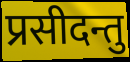
प्रसीदन्तु